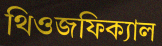
থিওজফিক্যাল